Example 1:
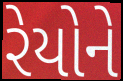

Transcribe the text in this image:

રેયોને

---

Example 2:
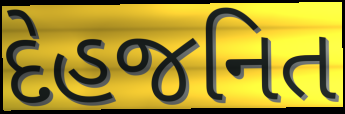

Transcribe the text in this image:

દેહજનિત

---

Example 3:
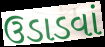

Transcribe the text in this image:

ઉડાડવાં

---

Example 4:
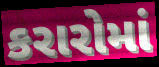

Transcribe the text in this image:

કરારોમાં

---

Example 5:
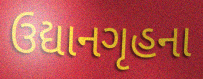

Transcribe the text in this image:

ઉદ્યાનગૃહના